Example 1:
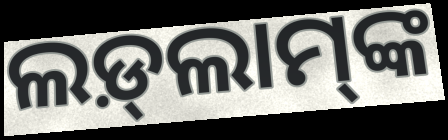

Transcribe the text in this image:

ଲଡ଼୍‍ଲାମ୍‍ଙ୍କ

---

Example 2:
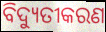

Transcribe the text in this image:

ବିଦ୍ୟୁତୀକରଣ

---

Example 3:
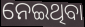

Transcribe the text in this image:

ନେଇଥିବା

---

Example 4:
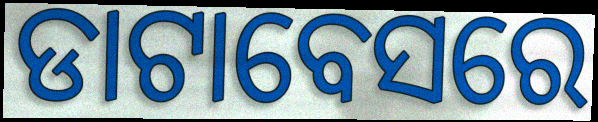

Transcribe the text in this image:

ଡାଟାବେସରେ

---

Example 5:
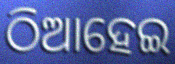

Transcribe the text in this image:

ଠିଆହେଇ